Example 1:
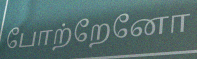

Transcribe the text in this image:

போற்றேனோ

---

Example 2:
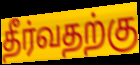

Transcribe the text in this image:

தீர்வதற்கு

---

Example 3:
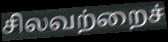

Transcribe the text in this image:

சிலவற்றைச்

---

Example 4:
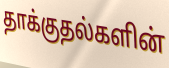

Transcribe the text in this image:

தாக்குதல்களின்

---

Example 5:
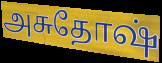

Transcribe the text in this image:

அசுதோஷ்